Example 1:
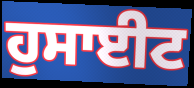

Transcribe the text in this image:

ਹੁਸਾਈਟ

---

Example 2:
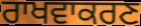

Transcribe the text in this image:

ਰਾਖਵਾਕਰਣ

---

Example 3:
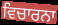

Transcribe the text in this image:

ਵਿਚਾਰਨਾ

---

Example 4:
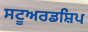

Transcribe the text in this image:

ਸਟੂਅਰਡਸ਼ਿਪ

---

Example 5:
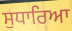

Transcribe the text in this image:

ਸੁਧਾਰਿਆ